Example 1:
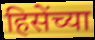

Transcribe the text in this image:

हिसेंच्या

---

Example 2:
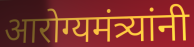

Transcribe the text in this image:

आरोग्यमंत्र्यांनी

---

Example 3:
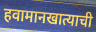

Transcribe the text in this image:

हवामानखात्याची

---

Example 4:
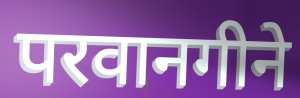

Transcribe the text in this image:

परवानगीने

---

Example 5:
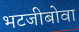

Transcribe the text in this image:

भटजीबोवा